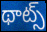
థాట్స్